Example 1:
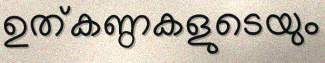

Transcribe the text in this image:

ഉത്കണ്ഠകളുടെയും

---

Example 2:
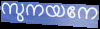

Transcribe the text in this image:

സുനയനേ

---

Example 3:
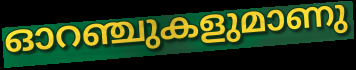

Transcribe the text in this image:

ഓറഞ്ചുകളുമാണു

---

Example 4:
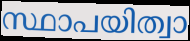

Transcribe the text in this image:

സ്ഥാപയിത്വാ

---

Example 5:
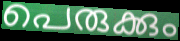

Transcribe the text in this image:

പെരുക്കും